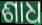
ଶାଧ